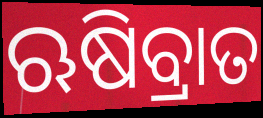
ଋଷିବ୍ରାତ